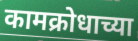
कामक्रोधाच्या